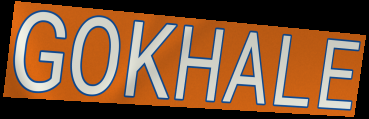
GOKHALE